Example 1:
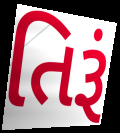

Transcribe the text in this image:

તિરૂં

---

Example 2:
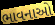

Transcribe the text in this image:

ભાવનાઓ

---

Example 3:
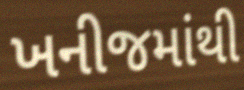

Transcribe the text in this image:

ખનીજમાંથી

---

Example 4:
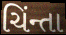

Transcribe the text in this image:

ચિંન્તા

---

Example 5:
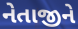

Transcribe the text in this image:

નેતાજીને